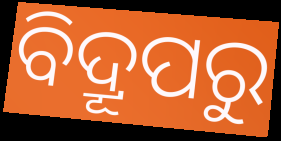
ବିଦ୍ରୂପରୁ